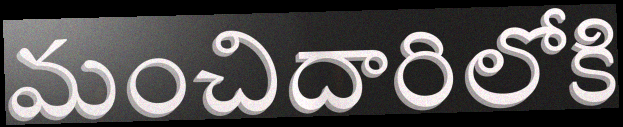
మంచిదారిలోకి